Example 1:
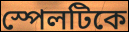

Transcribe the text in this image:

স্পেলটিকে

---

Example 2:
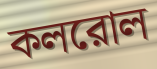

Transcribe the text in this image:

কলরোল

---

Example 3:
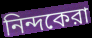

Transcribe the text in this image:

নিন্দকেরা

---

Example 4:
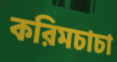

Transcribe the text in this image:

করিমচাচা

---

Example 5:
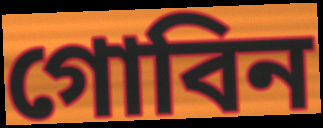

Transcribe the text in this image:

গোবিন